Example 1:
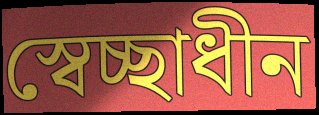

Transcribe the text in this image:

স্বেচ্ছাধীন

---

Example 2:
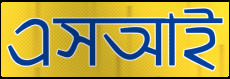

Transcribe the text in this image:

এসআই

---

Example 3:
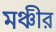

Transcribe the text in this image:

মঞ্চীর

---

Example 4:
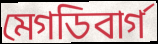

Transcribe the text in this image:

মেগডিবার্গ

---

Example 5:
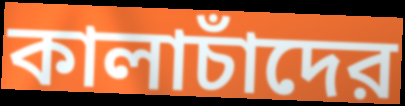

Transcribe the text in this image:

কালাচাঁদের